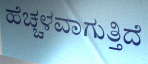
ಹೆಚ್ಚಳವಾಗುತ್ತಿದೆ